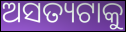
ଅସତ୍ୟଟାକୁ